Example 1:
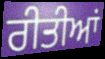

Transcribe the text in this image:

ਰੀਤੀਆਂ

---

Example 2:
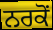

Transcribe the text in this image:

ਨਰਕੋਂ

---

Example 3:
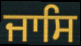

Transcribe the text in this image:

ਜਾਸਿ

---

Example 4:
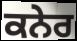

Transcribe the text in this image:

ਕਨੇਰ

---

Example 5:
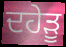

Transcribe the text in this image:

ਦਹੇੜੂ